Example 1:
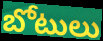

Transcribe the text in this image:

బోటులు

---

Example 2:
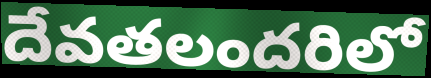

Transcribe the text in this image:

దేవతలందరిలో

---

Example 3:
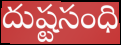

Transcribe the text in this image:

దుష్టసంధి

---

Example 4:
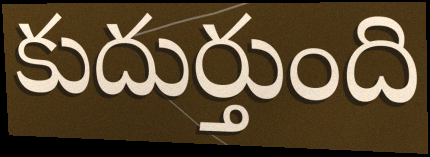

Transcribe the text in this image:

కుదుర్తుంది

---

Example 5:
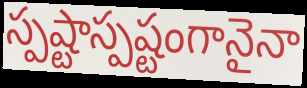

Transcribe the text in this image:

స్పష్టాస్పష్టంగానైనా